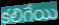
కలిగేయి